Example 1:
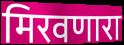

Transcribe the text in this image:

मिरवणारा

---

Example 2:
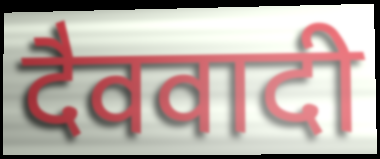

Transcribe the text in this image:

दैववादी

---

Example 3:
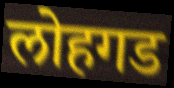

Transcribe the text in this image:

लोहगड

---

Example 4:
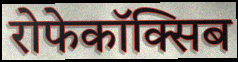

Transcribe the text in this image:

रोफेकॉक्सिब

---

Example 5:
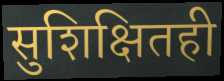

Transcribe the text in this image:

सुशिक्षितही